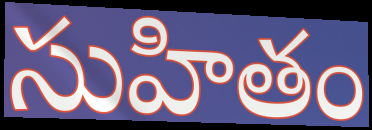
సుహితం